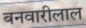
बनवारीलाल